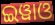
ଇୱାଓ